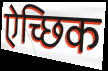
ऐच्छिक